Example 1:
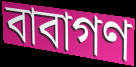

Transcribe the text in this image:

বাবাগণ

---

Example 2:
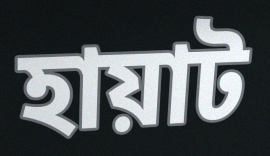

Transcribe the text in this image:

হায়াট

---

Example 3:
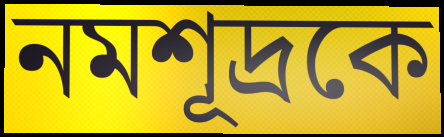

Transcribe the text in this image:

নমশূদ্রকে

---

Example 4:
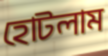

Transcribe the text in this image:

হোটলাম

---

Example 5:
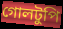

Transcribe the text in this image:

গোলটুপি